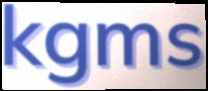
kgms